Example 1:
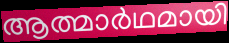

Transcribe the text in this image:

ആത്മാർഥമായി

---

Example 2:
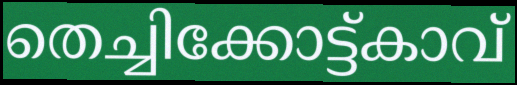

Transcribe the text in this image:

തെച്ചിക്കോട്ട്കാവ്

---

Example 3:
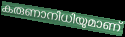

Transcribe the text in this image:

കരുണാനിധിയുമാണ്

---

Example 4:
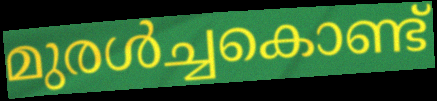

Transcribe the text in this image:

മുരൾച്ചകൊണ്ട്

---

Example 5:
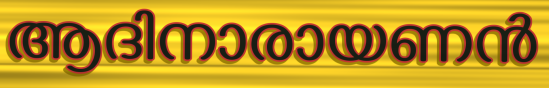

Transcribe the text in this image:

ആദിനാരായണൻ